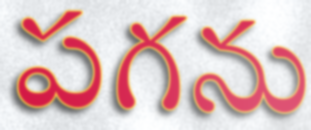
పగను